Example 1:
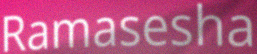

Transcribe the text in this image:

Ramasesha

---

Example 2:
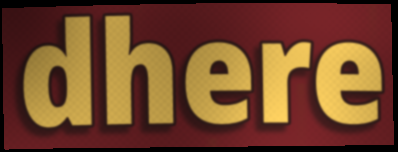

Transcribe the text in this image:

dhere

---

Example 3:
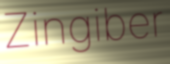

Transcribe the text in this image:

Zingiber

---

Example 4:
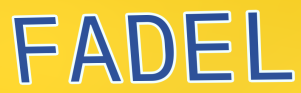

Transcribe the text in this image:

FADEL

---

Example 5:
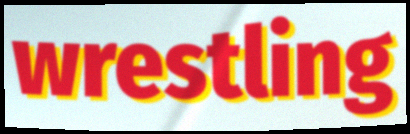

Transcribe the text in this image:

wrestling